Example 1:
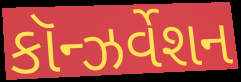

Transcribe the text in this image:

કૉન્ઝર્વેશન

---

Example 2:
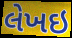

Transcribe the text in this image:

લેખઇ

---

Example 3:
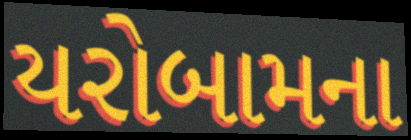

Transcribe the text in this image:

યરોબામના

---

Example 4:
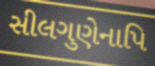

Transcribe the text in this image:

સીલગુણેનાપિ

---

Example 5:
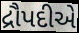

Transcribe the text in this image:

દ્રૌપદીએ